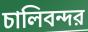
চালিবন্দর